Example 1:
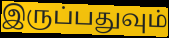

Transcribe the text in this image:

இருப்பதுவும்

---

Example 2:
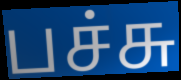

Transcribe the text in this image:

பச்சு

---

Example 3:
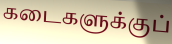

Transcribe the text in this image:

கடைகளுக்குப்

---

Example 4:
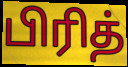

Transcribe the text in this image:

பிரித்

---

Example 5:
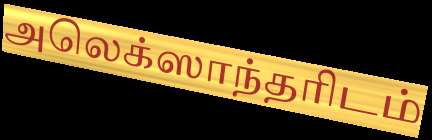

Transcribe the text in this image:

அலெக்ஸாந்தரிடம்